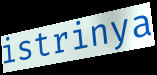
istrinya